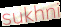
sukhni